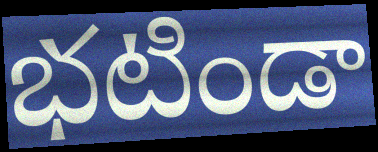
భటిండా